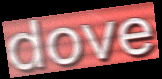
dove